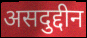
असदुद्दीन